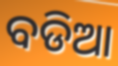
ବଡିଆ